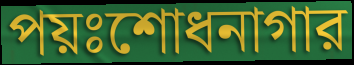
পয়ঃশোধনাগার